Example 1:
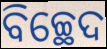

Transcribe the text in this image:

ବିଚ୍ଛେଦ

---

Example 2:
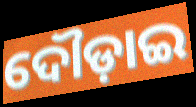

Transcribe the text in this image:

ଦୌଡ଼ାଇ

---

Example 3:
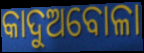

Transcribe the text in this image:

କାଦୁଅବୋଳା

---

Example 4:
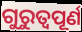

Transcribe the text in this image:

ଗୁରୁତ୍ୱପୂର୍ଣ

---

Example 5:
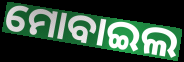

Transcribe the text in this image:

ମୋବାଇଲ